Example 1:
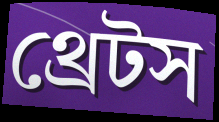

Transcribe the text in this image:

থ্রেটস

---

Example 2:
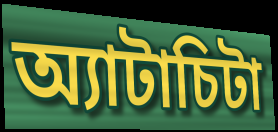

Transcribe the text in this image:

অ্যাটাচিটা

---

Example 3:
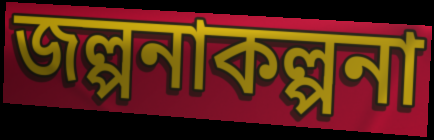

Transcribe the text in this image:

জল্পনাকল্পনা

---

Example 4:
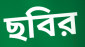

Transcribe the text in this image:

ছবির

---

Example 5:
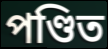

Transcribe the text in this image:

পণ্ডিত